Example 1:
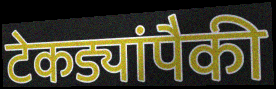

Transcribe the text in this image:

टेकड्यांपैकी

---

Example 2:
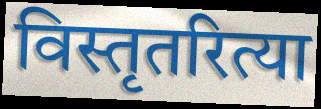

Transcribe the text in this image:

विस्तृतरित्या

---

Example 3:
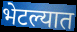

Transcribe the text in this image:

भेटल्यात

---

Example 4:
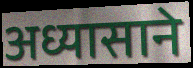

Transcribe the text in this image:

अध्यासाने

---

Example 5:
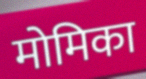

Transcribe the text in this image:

मोमिका